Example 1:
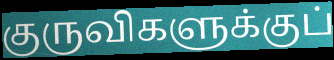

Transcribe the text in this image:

குருவிகளுக்குப்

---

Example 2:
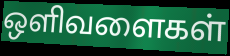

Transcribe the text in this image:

ஒளிவளைகள்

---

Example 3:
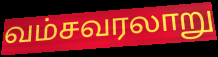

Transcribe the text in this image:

வம்சவரலாறு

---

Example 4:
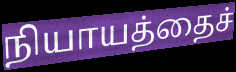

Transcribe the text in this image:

நியாயத்தைச்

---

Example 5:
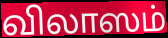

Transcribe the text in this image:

விலாஸம்